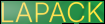
LAPACK